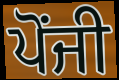
ਪੋਂਜੀ